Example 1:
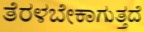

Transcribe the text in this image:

ತೆರಳಬೇಕಾಗುತ್ತದೆ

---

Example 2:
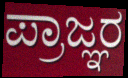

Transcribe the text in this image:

ಪ್ರಾಜ್ಞರ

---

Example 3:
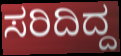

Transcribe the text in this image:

ಸರಿದಿದ್ದ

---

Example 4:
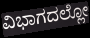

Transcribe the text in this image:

ವಿಭಾಗದಲ್ಲೋ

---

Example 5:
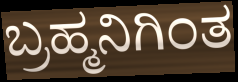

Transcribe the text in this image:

ಬ್ರಹ್ಮನಿಗಿಂತ